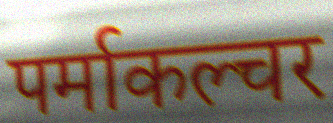
पर्माकल्चर